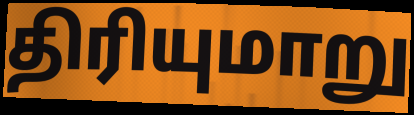
திரியுமாறு